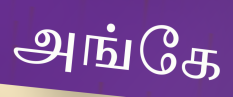
அங்கே